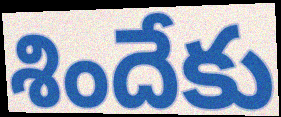
శిందేకు